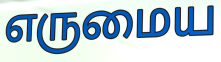
எருமைய